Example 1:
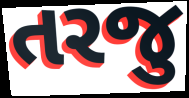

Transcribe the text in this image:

તરજુ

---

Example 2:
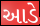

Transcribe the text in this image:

આડે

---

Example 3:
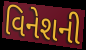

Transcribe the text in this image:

વિનેશની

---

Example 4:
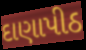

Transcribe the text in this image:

દાણાપીઠ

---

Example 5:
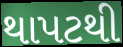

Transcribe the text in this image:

થાપટથી